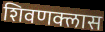
शिवणक्लास